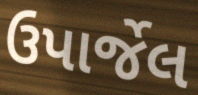
ઉપાર્જેલ